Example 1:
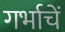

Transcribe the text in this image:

गर्भाचें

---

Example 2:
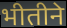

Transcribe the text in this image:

भीतीने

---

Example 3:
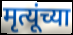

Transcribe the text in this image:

मृत्यूंच्या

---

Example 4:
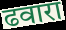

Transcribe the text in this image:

ढवारा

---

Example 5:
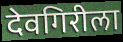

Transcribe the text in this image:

देवगिरीला